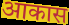
आकास